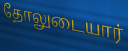
தோலுடையார்